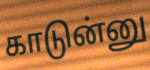
காடுன்னு